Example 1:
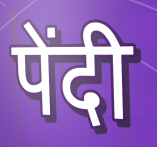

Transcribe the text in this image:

पेंदी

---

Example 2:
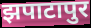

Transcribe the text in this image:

झपाटापुर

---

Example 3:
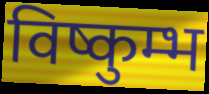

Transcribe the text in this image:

विष्कुम्भ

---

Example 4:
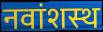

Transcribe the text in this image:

नवांशस्थ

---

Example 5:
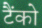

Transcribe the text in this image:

टैंको